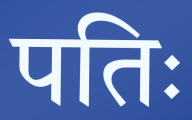
पतिः